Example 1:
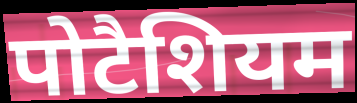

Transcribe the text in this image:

पोटैशियम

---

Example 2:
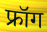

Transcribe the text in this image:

फ्रॉग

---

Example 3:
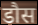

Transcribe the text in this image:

डौस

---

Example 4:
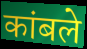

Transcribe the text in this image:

कांबले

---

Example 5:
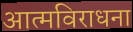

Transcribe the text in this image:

आत्मविराधना